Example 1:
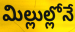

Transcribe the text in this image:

మిల్లుల్లోనే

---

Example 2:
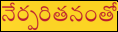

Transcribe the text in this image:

నేర్పరితనంతో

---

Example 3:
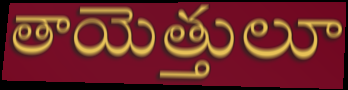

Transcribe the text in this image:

తాయెత్తులూ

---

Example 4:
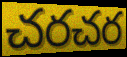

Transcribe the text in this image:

చరచర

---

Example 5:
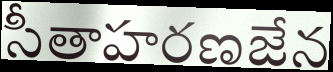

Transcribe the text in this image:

సీతాహరణజేన